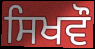
ਸਿਖਵੌ